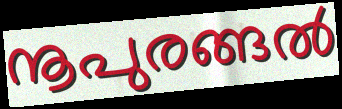
നൂപുരങ്ങൽ